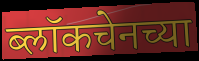
ब्लॉकचेनच्या